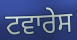
ਟਵਾਰੇਸ